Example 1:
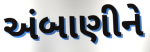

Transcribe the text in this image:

અંબાણીને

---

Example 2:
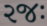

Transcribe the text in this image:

રજઃ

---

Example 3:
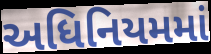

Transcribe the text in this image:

અધિનિયમમાં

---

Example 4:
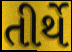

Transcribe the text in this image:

તીર્થે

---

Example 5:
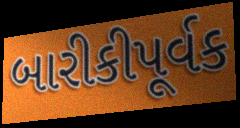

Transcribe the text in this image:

બારીકીપૂર્વક